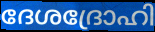
ദേശദ്രോഹി